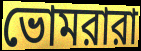
ভোমরারা